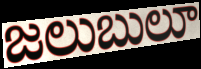
జలుబులూ